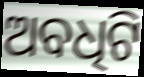
ଅବଧିଟି